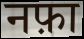
नफ़ा